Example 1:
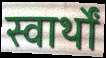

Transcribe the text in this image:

स्वार्थों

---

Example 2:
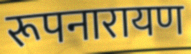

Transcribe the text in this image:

रूपनारायण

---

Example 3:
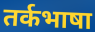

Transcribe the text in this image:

तर्कभाषा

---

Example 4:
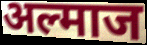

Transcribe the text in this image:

अल्माज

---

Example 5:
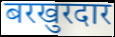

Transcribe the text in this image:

बरखुरदार